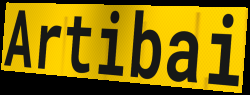
Artibai